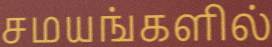
சமயங்களில்